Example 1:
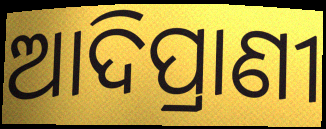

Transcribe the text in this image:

ଆଦିପ୍ରାଣୀ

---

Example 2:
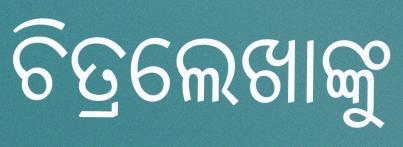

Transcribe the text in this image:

ଚିତ୍ରଲେଖାଙ୍କୁ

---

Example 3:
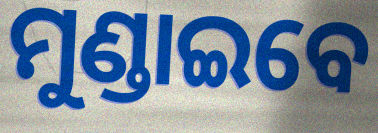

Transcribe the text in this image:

ମୁଣ୍ଡାଇବେ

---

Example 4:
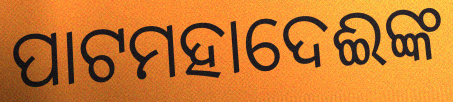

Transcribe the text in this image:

ପାଟମହାଦେଈଙ୍କ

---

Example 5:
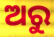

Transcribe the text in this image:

ଅରୁ